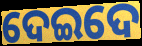
ଦେଇଦେ